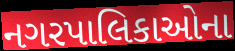
નગરપાલિકાઓના